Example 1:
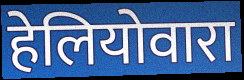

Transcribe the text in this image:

हेलियोवारा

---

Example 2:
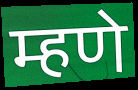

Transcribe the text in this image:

म्हणे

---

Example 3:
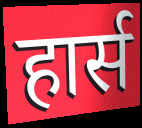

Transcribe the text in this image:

हार्स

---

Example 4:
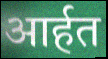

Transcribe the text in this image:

आर्हत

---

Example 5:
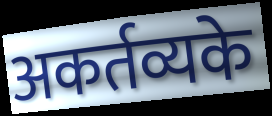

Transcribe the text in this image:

अकर्तव्यके